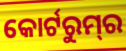
କୋର୍ଟରୁମ୍‌ର